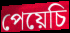
পেয়েচি